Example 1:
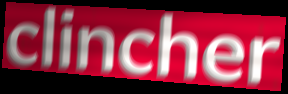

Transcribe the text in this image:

clincher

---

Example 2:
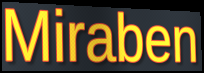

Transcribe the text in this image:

Miraben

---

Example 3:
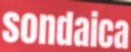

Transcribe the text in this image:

sondaica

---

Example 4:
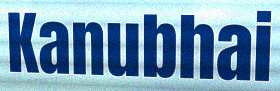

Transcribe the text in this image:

Kanubhai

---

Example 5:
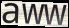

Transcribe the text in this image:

aww